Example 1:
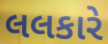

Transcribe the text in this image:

લલકારે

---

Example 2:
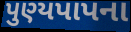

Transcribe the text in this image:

પુણ્યપાપના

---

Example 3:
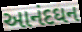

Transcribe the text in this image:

આનંદઘન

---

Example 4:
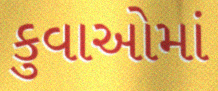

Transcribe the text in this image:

કુવાઓમાં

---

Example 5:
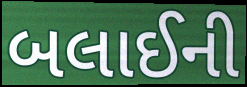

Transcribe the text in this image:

બલાઈની